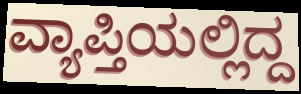
ವ್ಯಾಪ್ತಿಯಲ್ಲಿದ್ದ